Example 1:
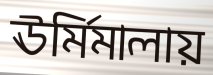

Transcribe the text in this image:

ঊর্মিমালায়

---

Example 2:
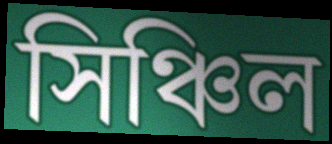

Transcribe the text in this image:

সিঞ্চিল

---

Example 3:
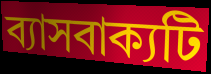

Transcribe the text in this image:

ব্যাসবাক্যটি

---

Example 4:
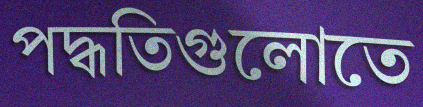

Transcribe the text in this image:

পদ্ধতিগুলোতে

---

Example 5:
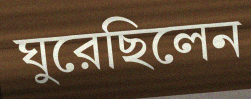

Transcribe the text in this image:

ঘুরেছিলেন